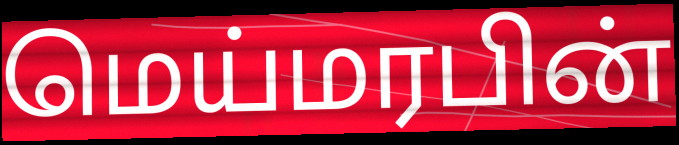
மெய்மரபின்